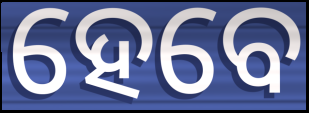
ହେବେ